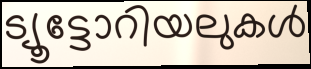
ട്യൂട്ടോറിയലുകൾ